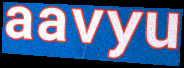
aavyu